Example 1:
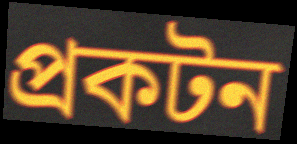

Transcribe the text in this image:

প্রকটন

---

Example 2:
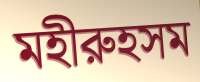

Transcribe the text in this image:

মহীরুহসম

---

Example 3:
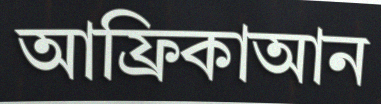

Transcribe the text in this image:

আফ্রিকাআন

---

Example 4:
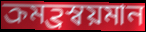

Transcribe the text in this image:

ক্রমহ্রস্বয়মান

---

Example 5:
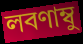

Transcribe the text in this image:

লবণাম্বু